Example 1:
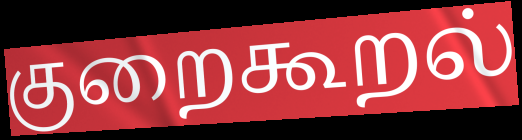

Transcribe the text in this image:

குறைகூறல்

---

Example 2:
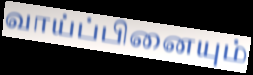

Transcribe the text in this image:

வாய்ப்பினையும்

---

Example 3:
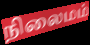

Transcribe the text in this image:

நிலைமம்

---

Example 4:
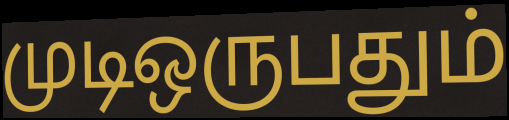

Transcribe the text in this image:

முடிஒருபதும்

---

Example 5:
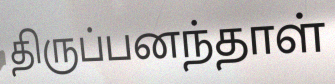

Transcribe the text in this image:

திருப்பனந்தாள்